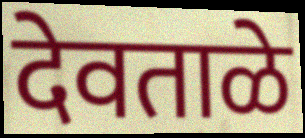
देवताळे